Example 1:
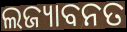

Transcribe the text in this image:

ଲଜ୍ୟାବନତ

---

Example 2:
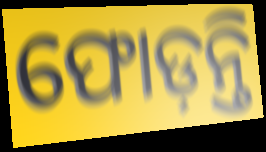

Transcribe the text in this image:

ଫୋଡ଼ନ୍ତି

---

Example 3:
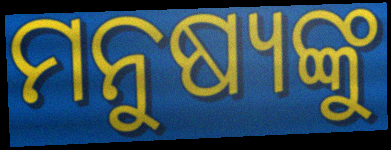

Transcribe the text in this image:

ମନୁଷ୍ୟଙ୍କୁ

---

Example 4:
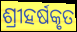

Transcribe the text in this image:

ଶ୍ରୀହର୍ଷକୃତ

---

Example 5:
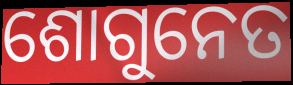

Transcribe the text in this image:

ଶୋଗୁନେତ